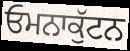
ਓਮਨਾਕੁੱਟਨ